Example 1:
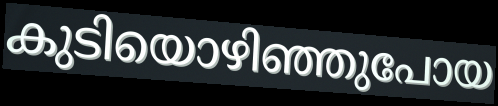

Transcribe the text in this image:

കുടിയൊഴിഞ്ഞുപോയ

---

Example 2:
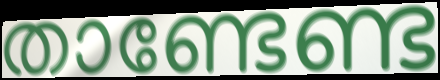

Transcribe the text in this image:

താണ്ടേണ്ട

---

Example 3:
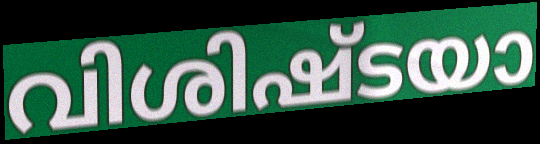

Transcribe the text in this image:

വിശിഷ്ടയാ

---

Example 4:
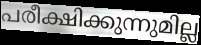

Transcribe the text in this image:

പരീക്ഷിക്കുന്നുമില്ല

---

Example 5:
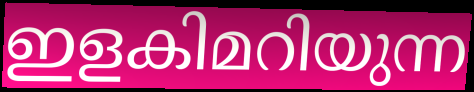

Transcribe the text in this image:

ഇളകിമറിയുന്ന